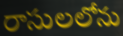
రాసులలోను